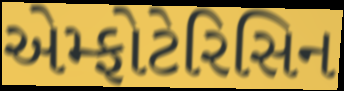
એમ્ફોટેરિસિન